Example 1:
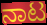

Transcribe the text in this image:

ನಾಟ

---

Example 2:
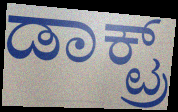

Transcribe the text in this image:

ಡಾಕ್ಟ್ರ್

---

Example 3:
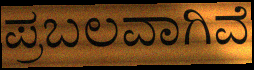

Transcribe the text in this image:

ಪ್ರಬಲವಾಗಿವೆ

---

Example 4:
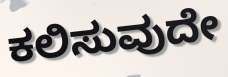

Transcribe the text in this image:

ಕಲಿಸುವುದೇ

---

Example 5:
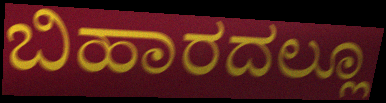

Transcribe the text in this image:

ಬಿಹಾರದಲ್ಲೂ